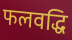
फलवद्धि